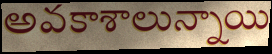
అవకాశాలున్నాయి